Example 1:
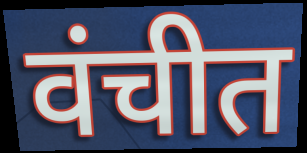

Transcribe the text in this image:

वंचीत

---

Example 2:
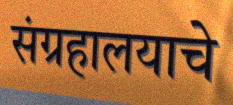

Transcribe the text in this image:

संग्रहालयाचे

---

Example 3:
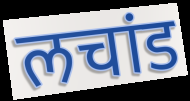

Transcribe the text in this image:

लचांड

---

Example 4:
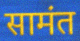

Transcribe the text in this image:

सामंत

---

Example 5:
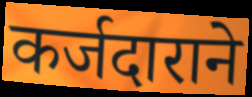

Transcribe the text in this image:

कर्जदाराने